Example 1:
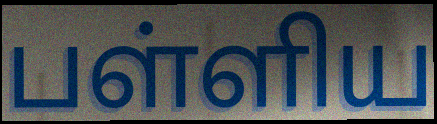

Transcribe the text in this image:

பள்ளிய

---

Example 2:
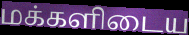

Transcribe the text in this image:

மக்களிடைய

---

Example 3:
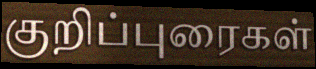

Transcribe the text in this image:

குறிப்புரைகள்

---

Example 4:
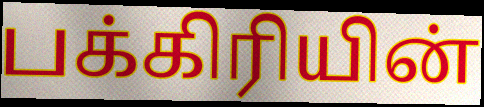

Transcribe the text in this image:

பக்கிரியின்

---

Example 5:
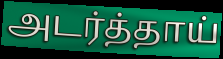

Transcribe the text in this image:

அடர்த்தாய்